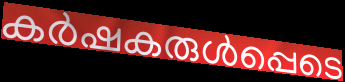
കർഷകരുൾപ്പെടെ